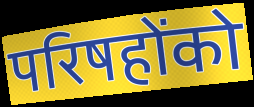
परिषहोंको